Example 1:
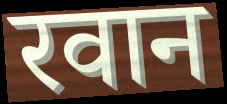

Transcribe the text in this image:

रवान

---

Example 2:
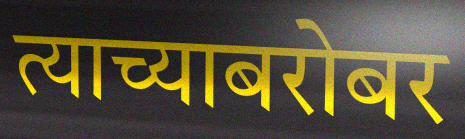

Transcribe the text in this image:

त्याच्याबरोबर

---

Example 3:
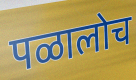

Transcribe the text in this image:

पळालोच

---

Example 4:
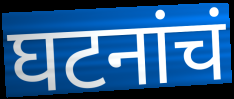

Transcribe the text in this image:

घटनांचं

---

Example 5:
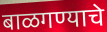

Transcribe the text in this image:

बाळगण्याचे